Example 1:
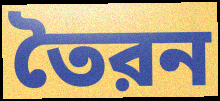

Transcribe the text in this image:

তৈরন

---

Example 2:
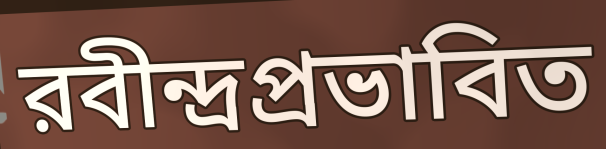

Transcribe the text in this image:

রবীন্দ্রপ্রভাবিত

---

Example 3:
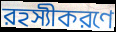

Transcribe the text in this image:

রহস্যীকরণে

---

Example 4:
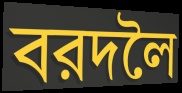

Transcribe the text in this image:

বরদলৈ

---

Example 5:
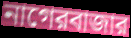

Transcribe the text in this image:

নাগেরবাজার